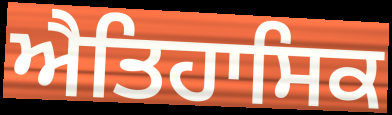
ਐਤਿਹਾਸਿਕ